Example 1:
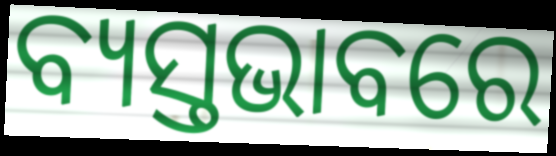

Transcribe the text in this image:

ବ୍ୟସ୍ତଭାବରେ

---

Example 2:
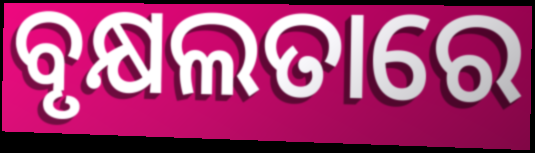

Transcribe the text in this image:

ବୃକ୍ଷଲତାରେ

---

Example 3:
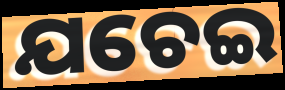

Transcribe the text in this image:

ଯଚେଇ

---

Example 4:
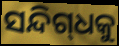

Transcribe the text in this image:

ସନ୍ଦିଗ୍‌ଧକୁ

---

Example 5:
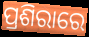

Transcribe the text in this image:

ପ୍ରଶିରାରେ